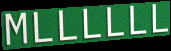
MLLLLLL